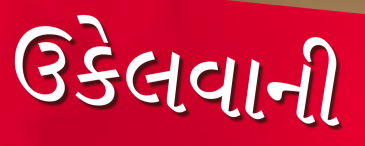
ઉકેલવાની